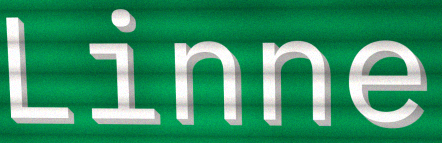
Linne